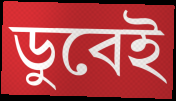
ডুবেই